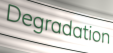
Degradation